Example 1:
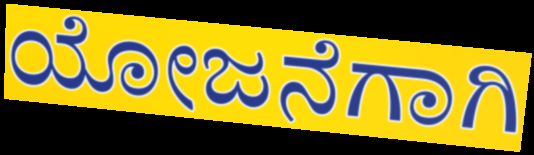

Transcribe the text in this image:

ಯೋಜನೆಗಾಗಿ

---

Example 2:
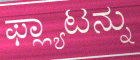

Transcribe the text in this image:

ಫ್ಲ್ಯಾಟನ್ನು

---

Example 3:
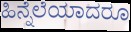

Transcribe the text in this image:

ಹಿನ್ನೆಲೆಯಾದರೂ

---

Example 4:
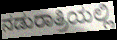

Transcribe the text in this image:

ನಡುರಾತ್ರಿಯಲ್ಲಿ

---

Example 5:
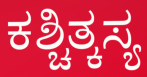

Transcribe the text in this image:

ಕಶ್ಚಿತ್ಕಸ್ಯ